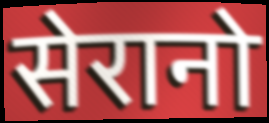
सेरानो